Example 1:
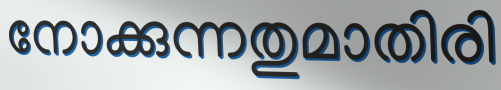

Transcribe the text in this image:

നോക്കുന്നതുമാതിരി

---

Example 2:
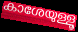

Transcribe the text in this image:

കാശേയുള്ളൂ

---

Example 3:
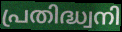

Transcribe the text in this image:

പ്രതിദ്ധ്വനി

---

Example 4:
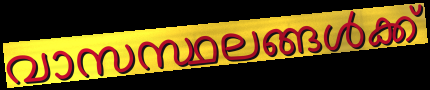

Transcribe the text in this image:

വാസസ്ഥലങ്ങൾക്ക്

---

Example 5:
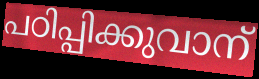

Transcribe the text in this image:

പഠിപ്പിക്കുവാന്